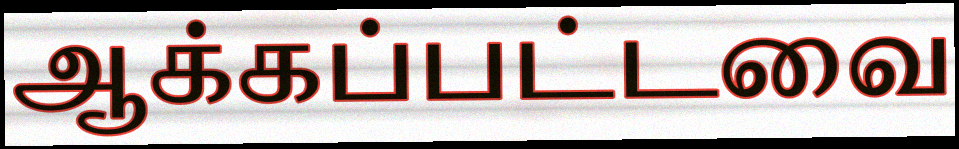
ஆக்கப்பட்டவை